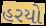
હરયો